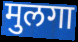
मुलगा